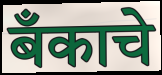
बँकाचे